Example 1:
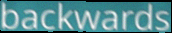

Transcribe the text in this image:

backwards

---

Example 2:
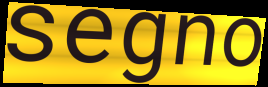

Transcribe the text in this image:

segno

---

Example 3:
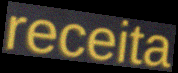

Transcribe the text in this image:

receita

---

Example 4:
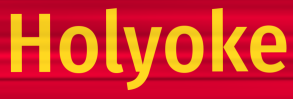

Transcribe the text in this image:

Holyoke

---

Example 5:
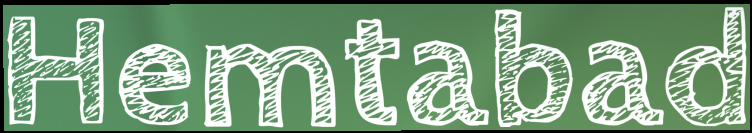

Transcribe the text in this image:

Hemtabad